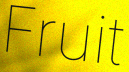
Fruit